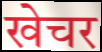
खेचर